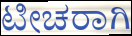
ಟೀಚರಾಗಿ